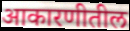
आकारणीतील